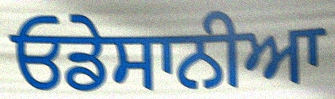
ਓਡੇਸਾਨੀਆ